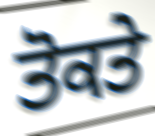
ਤੋਕਤੇ